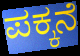
ಪಕ್ಕನೆ